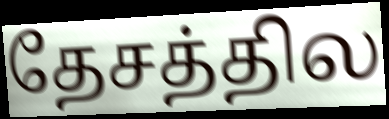
தேசத்தில